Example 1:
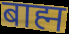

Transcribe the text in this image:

बाह्म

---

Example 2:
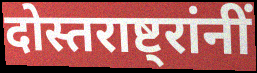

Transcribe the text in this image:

दोस्तराष्ट्रांनीं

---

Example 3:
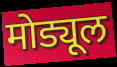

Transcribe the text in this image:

मोड्यूल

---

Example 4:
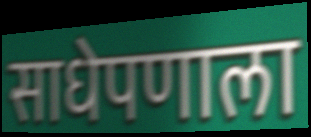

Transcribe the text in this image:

साधेपणाला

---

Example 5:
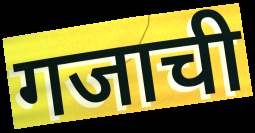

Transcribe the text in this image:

गजाची